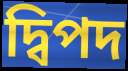
দ্বিপদ